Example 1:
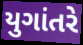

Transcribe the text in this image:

યુગાંતરે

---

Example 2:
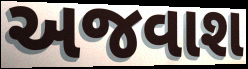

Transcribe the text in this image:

અજવાશ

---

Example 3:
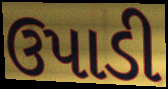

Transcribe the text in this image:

ઉપાડી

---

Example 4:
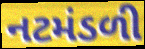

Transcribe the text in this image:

નટમંડળી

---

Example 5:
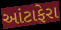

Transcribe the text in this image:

આંટાફેરા